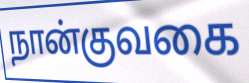
நான்குவகை